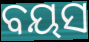
ବୟସ